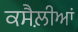
ਕਸੈਲ਼ੀਆਂ